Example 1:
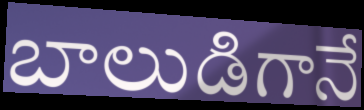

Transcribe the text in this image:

బాలుడిగానే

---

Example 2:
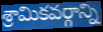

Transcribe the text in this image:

శ్రామికవర్గాన్ని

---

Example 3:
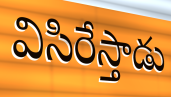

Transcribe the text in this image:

విసిరేస్తాడు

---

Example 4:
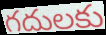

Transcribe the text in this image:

గదులకు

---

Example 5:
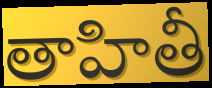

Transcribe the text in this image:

తాహితీ